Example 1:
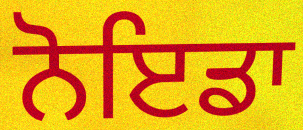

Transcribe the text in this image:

ਨੋਇਡਾ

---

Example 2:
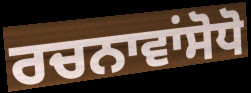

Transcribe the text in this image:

ਰਚਨਾਵਾਂਸੋਧੋ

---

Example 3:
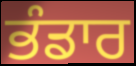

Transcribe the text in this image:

ਭੰਡਾਰ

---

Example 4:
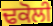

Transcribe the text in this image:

ਢਕੋਲੀ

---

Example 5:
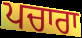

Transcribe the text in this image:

ਪਚਾਰਾ